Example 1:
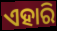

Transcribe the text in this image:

ଏହାରି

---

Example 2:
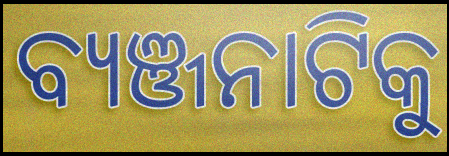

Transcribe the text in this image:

ବ୍ୟଞ୍ଜନାଟିକୁ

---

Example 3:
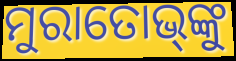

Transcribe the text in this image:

ମୁରାତୋଭ୍‌ଙ୍କୁ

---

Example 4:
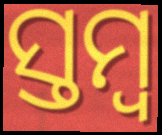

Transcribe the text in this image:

ସ୍ତମ୍ବ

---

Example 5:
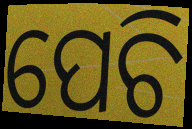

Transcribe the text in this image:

ପେଚି